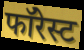
फॉरेस्ट